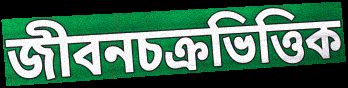
জীবনচক্রভিত্তিক